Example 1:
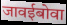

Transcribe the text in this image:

जावईबोवा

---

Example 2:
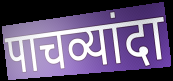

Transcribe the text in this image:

पाचव्यांदा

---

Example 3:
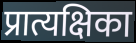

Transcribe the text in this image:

प्रात्यक्षिका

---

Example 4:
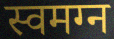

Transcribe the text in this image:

स्वमग्न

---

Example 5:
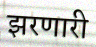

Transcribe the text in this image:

झरणारी